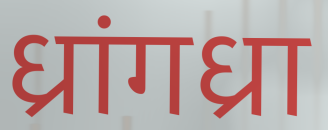
ध्रांगध्रा